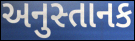
અનુસ્તાનક